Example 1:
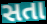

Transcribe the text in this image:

સતા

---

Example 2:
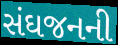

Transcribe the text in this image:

સંઘજનની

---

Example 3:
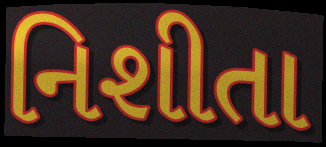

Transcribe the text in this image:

નિશીતા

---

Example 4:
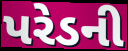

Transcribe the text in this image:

પરેડની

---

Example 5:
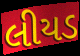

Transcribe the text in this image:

લીયડ